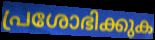
പ്രശോഭിക്കുക